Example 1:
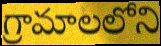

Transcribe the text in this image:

గ్రామాలలోని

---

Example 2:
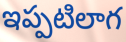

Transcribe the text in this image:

ఇప్పటిలాగ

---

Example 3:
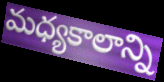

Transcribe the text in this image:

మధ్యకాలాన్ని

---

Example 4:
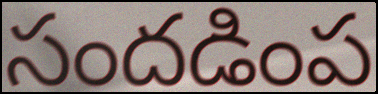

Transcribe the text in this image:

సందడింప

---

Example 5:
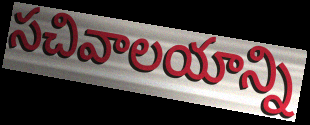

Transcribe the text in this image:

సచివాలయాన్ని